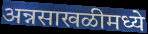
अन्नसाखळीमध्ये